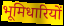
भूमिधारियों